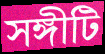
সঙ্গীটি